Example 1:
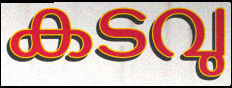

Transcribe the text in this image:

കടവു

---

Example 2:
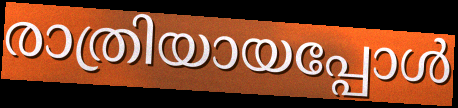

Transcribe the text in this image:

രാത്രിയായപ്പോൾ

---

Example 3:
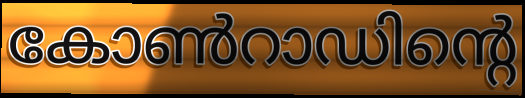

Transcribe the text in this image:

കോൺറാഡിന്റെ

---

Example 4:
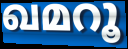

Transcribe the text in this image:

ഖമറൂ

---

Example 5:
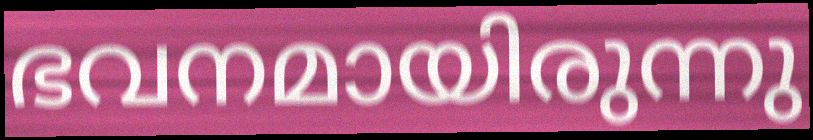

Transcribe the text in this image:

ഭവനമായിരുന്നു